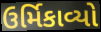
ઉર્મિકાવ્યો